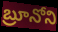
బ్రూనోని